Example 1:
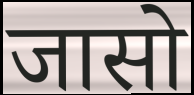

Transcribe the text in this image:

जासो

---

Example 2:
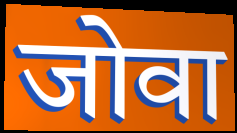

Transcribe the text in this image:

जोवा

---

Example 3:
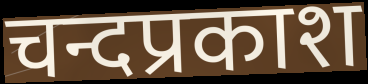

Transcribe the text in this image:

चन्दप्रकाश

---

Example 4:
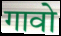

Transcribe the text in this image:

गावो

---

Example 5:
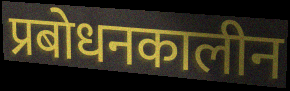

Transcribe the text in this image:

प्रबोधनकालीन